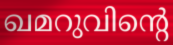
ഖമറുവിന്റെ